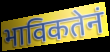
भाविकतेनं